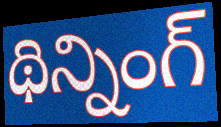
థిన్నింగ్